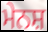
ਮੇਨਸ਼